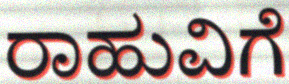
ರಾಹುವಿಗೆ